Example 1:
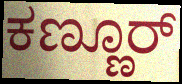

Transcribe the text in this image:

ಕಣ್ಣೂರ್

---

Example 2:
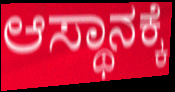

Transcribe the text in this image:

ಆಸ್ಥಾನಕ್ಕೆ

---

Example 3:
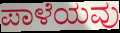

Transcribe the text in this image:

ಪಾಳೆಯವು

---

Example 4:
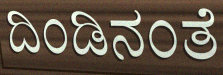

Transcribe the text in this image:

ದಿಂಡಿನಂತೆ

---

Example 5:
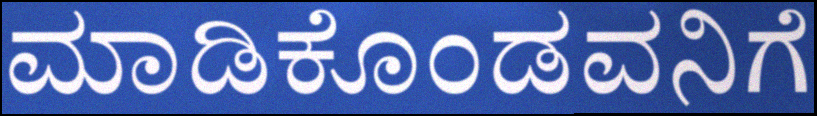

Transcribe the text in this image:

ಮಾಡಿಕೊಂಡವನಿಗೆ